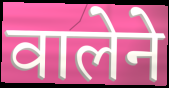
वालेने